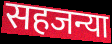
सहजन्या